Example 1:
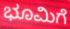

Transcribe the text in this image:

ಭೂಮಿಗೆ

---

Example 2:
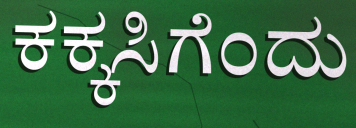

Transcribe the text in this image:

ಕಕ್ಕಸಿಗೆಂದು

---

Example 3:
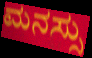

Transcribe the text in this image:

ಮನಸ್ಸು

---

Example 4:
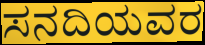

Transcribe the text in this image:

ಸನದಿಯವರ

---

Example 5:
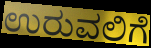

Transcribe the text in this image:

ಉರುವಲಿಗೆ